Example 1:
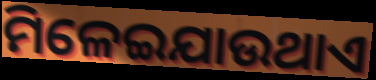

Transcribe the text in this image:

ମିଳେଇଯାଉଥାଏ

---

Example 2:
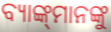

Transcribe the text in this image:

ବ୍ୟାଙ୍କ୍‌ମାନଙ୍କୁ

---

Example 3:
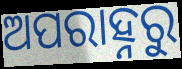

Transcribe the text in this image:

ଅପରାହ୍ନରୁ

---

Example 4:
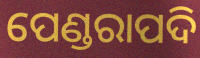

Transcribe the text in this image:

ପେଣ୍ଡରାପଦି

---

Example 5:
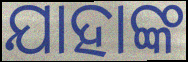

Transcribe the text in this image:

ଯାହାଙ୍କ